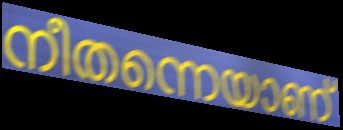
നീതന്നെയാണ്